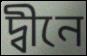
দ্বীনে